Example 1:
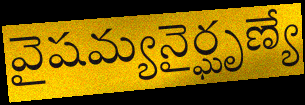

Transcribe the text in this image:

వైషమ్యనైర్ఘృణ్యే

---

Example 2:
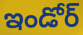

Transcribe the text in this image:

ఇండోర్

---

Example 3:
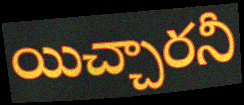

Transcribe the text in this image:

యిచ్చారనీ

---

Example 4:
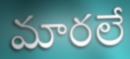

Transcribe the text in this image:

మారలే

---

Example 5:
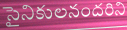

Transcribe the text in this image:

సైనికులనందరిని